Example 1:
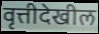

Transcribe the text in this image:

वृत्तीदेखील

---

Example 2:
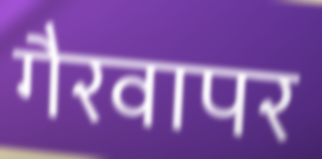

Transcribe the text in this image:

गैरवापर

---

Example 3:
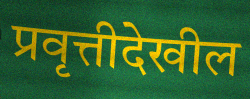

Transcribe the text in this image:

प्रवृत्तीदेखील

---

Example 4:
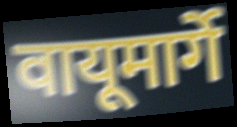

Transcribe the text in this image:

वायूमार्गे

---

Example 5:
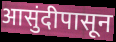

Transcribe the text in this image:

आसुंदीपासून